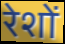
रेशों